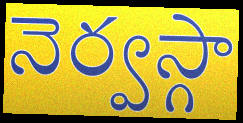
నెర్వస్గా